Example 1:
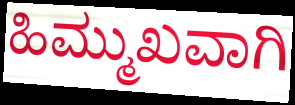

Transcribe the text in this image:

ಹಿಮ್ಮುಖವಾಗಿ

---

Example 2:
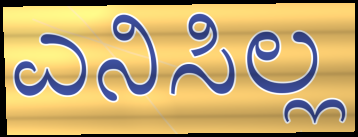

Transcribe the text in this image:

ಎನಿಸಿಲ್ಲ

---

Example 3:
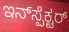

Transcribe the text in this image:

ಇನ್‌ಸ್ಪೆಕ್ಟರ್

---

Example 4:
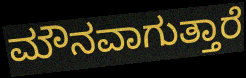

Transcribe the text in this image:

ಮೌನವಾಗುತ್ತಾರೆ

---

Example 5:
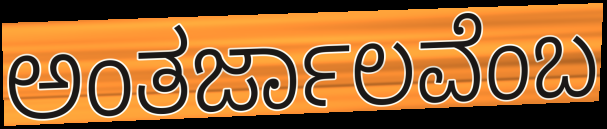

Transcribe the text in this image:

ಅಂತರ್ಜಾಲವೆಂಬ